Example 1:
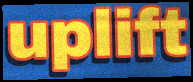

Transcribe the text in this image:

uplift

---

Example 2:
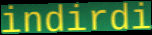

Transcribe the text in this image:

indirdi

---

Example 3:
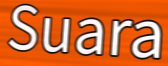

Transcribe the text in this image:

Suara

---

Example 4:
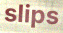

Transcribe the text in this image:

slips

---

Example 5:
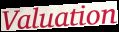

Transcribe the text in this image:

Valuation